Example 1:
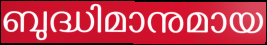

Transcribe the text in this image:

ബുദ്ധിമാനുമായ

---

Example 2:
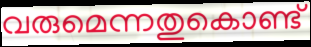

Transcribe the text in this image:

വരുമെന്നതുകൊണ്ട്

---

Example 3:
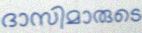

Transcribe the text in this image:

ദാസിമാരുടെ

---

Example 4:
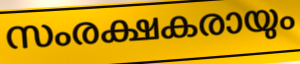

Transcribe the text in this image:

സംരക്ഷകരായും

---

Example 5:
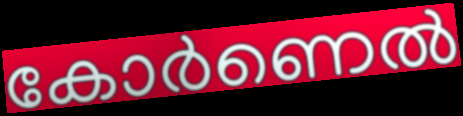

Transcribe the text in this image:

കോർണെൽ